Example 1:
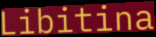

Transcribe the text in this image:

Libitina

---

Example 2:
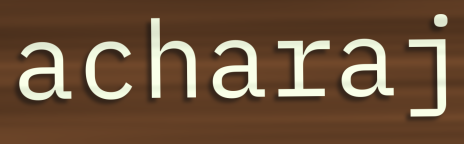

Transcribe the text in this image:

acharaj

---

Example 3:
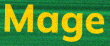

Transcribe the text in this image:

Mage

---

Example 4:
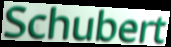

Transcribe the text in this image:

Schubert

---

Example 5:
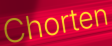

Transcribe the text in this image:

Chorten